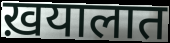
ख़यालात